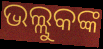
ଭଲ୍ଲୁକଙ୍କ